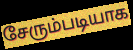
சேரும்படியாக